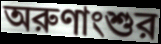
অরুণাংশুর